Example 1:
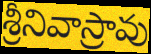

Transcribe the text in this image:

శ్రీనివాస్రావు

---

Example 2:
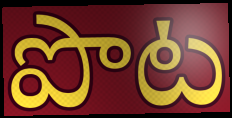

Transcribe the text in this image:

పొట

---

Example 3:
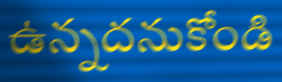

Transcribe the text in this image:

ఉన్నదనుకోండి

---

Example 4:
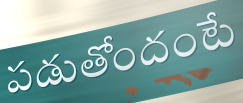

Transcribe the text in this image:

పడుతోందంటే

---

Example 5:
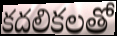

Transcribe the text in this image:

కదలికలతో